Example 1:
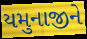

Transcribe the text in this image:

યમુનાજીને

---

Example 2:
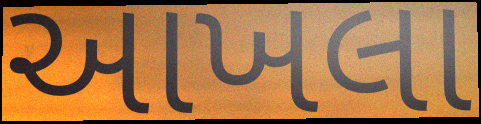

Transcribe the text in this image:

આખલા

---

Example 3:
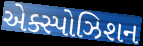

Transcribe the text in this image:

એક્સ્પોઝિશન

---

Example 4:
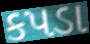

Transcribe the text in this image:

કપડા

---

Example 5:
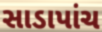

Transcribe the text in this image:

સાડાપાંચ